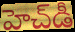
హెచ్‌డీ